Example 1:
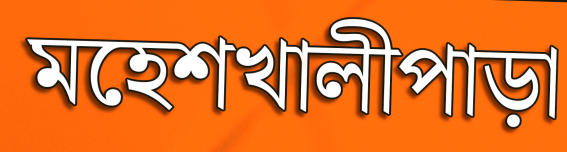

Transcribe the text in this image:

মহেশখালীপাড়া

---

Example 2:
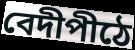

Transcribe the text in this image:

বেদীপীঠে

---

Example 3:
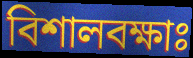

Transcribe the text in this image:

বিশালবক্ষাঃ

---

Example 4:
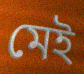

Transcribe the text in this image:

মেই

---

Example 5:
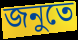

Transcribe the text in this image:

জনুতে